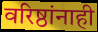
वरिष्ठांनाही